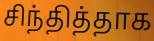
சிந்தித்தாக